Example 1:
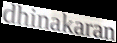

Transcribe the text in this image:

dhinakaran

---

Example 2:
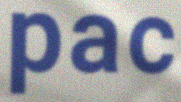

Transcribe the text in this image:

pac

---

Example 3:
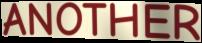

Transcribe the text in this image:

ANOTHER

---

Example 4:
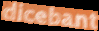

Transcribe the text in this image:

dicebant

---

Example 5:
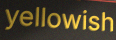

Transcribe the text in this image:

yellowish